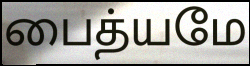
பைத்யமே